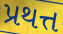
પ્રથત્ત